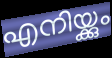
എനിയ്ക്കും